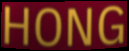
HONG